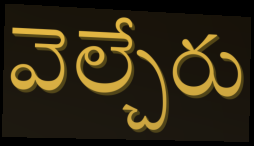
వెల్చేరు